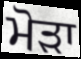
ਮੋੜਾ